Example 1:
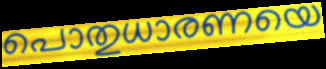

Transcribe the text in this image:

പൊതുധാരണയെ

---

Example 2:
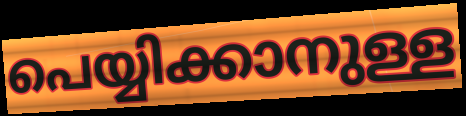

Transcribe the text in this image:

പെയ്യിക്കാനുള്ള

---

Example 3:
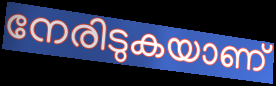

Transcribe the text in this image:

നേരിടുകയാണ്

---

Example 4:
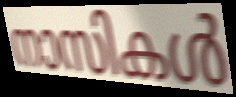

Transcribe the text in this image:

നാസികൾ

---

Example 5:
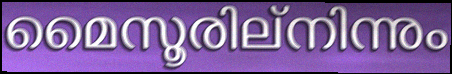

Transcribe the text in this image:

മൈസൂരില്നിന്നും